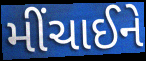
મીંચાઈને